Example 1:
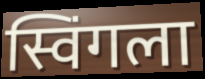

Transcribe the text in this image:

स्विंगला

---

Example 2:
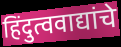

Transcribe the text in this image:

हिंदुत्ववाद्यांचे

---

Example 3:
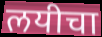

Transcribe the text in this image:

लयीचा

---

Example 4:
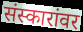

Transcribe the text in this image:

संस्कारांवर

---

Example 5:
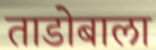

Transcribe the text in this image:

ताडोबाला